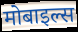
मोबाइल्स